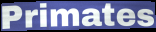
Primates